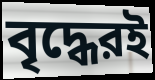
বৃদ্ধেরই